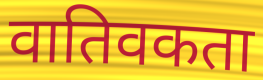
वातिवकता